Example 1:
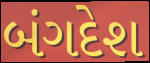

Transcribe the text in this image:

બંગદેશ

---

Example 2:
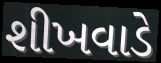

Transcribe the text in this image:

શીખવાડે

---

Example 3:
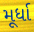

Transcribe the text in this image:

મૂર્ધા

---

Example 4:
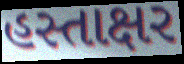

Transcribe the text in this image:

હસ્તાક્ષર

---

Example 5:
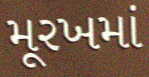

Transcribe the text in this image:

મૂરખમાં